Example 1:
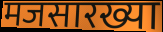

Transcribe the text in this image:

मजसारख्या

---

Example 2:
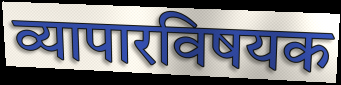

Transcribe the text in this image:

व्यापारविषयक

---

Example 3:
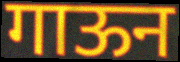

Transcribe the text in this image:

गाऊन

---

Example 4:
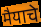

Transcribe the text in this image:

मैयाचे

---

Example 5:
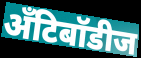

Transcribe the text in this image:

अँटिबॉडीज